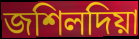
জশিলদিয়া